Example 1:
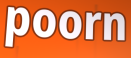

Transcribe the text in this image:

poorn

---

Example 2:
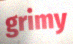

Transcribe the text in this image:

grimy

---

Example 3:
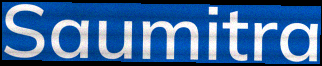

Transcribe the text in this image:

Saumitra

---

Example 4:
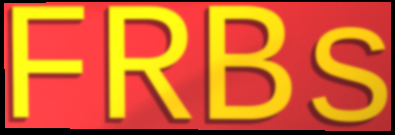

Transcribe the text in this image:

FRBs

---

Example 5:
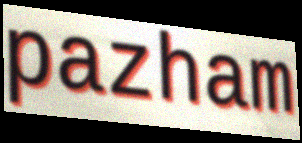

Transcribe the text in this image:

pazham